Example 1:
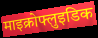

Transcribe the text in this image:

माइक्रोफ्लुइडिक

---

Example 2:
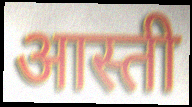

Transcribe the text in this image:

आस्ती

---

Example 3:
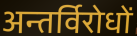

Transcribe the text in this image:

अन्तर्विरोधों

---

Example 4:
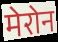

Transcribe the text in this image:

मेरोन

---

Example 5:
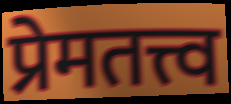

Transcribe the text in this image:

प्रेमतत्त्व